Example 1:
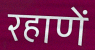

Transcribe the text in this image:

रहाणें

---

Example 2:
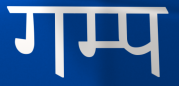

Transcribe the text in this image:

गम्प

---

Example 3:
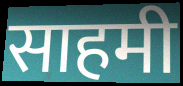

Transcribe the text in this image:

साहमी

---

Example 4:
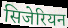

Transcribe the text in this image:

सिजेरियन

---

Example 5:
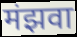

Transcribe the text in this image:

मंझवा